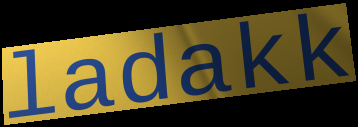
ladakk